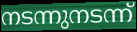
നടന്നുനടന്ന്